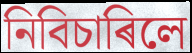
নিবিচাৰিলে